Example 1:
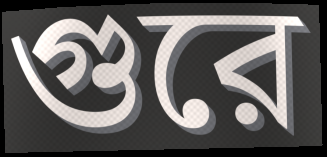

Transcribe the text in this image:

গুরে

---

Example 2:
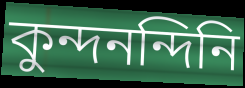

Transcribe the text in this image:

কুন্দনন্দিনি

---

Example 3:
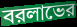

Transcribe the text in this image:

বরলাভের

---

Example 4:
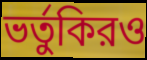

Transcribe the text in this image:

ভর্তুকিরও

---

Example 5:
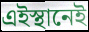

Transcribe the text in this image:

এইস্থানেই